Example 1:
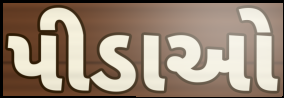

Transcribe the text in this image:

પીડાઓ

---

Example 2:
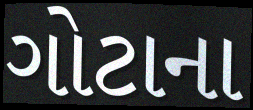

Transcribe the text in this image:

ગોટાના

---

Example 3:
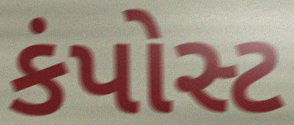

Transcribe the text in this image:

કંપોસ્ટ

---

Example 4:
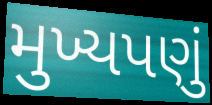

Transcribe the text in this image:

મુખ્યપણું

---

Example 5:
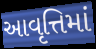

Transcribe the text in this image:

આવૃત્તિમાં